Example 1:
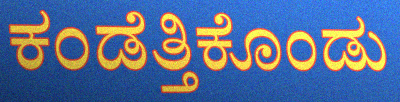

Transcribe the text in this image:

ಕಂಡೆತ್ತಿಕೊಂಡು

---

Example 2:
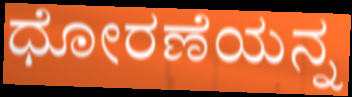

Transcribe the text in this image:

ಧೋರಣೆಯನ್ನ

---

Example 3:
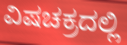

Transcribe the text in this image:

ವಿಷಚಕ್ರದಲ್ಲಿ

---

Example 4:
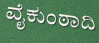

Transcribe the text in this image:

ವೈಕುಂಠಾದಿ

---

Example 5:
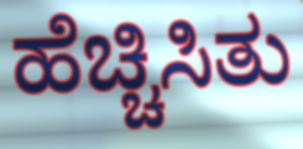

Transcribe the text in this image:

ಹೆಚ್ಚಿಸಿತು